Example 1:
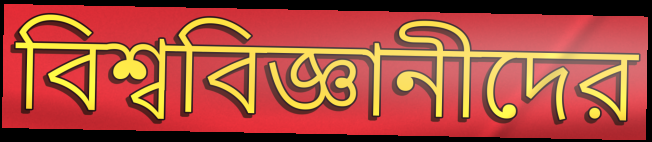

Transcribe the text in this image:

বিশ্ববিজ্ঞানীদের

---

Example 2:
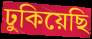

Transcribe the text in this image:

ঢুকিয়েছি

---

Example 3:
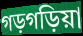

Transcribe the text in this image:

গড়গড়িয়া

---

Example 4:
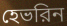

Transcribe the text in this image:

হেভরিন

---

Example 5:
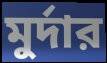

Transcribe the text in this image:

মুর্দার